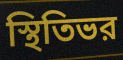
স্থিতিভর